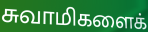
சுவாமிகளைக்